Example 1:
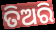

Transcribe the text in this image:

ତିଅରି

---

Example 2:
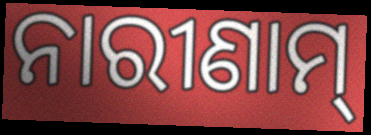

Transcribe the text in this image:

ନାରୀଣାମ୍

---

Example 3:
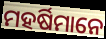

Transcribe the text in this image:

ମହର୍ଷିମାନେ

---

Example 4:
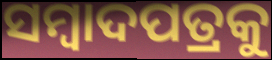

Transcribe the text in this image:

ସମ୍ବାଦପତ୍ରକୁ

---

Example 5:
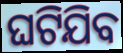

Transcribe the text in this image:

ଘଟିଯିବ